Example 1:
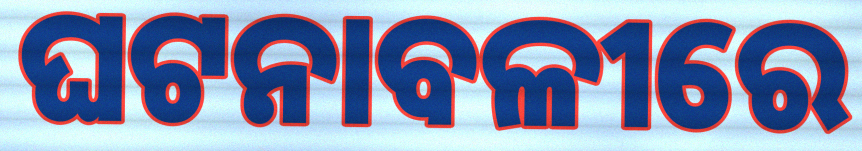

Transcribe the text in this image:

ଘଟନାବଳୀରେ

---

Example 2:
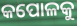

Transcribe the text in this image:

କପୋଳକୁ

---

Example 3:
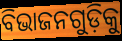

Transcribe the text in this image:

ବିଭାଜନଗୁଡ଼ିକୁ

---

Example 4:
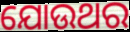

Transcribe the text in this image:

ଯୋଉଥର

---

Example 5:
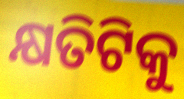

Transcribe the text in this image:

କ୍ଷତିଟିକୁ